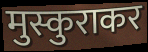
मुस्‍कुराकर